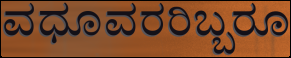
ವಧೂವರರಿಬ್ಬರೂ